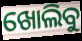
ଖୋଲିବୁ